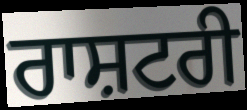
ਰਾਸ਼ਟਰੀ